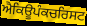
ਐਕਿਊਪੰਕਚਰਿਸਟ